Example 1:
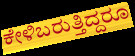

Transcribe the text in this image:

ಕೇಳಿಬರುತ್ತಿದ್ದರೂ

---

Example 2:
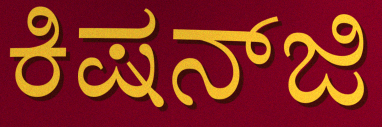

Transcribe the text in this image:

ಕಿಷನ್‌ಜಿ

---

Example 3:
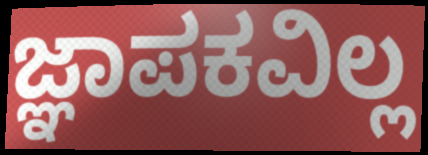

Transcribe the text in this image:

ಜ್ಞಾಪಕವಿಲ್ಲ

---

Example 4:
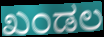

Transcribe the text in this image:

ಖಂಡಲ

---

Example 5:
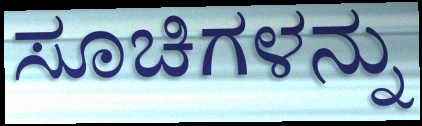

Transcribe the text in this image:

ಸೂಚಿಗಳನ್ನು